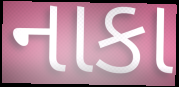
નાકા